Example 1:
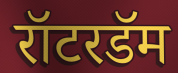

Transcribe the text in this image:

रॉटरडॅम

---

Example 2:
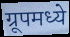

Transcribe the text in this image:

ग्रूपमध्ये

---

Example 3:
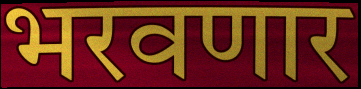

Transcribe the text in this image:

भरवणार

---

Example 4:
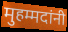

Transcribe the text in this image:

मुहम्मदांनी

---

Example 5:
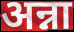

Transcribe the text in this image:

अन्ना